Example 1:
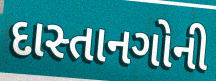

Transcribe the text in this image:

દાસ્તાનગોની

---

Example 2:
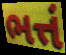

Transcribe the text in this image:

ભત્તં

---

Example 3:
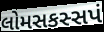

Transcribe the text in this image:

લોમસકસ્સપં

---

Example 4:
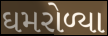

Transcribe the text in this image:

ઘમરોળ્યા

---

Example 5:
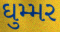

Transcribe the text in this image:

ઘુમ્મર